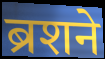
ब्रशने